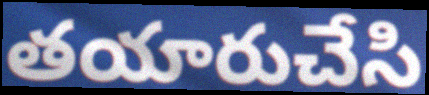
తయారుచేసి